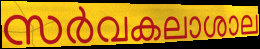
സർവകലാശാല